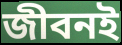
জীবনই